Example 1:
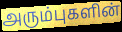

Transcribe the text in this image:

அரும்புகளின்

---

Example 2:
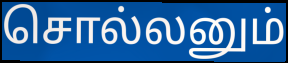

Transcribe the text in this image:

சொல்லனும்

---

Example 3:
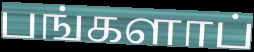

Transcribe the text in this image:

பங்களாப்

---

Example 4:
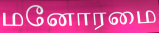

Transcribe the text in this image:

மனோரமை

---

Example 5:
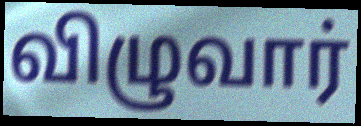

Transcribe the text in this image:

விழுவார்